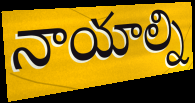
నాయాల్ని